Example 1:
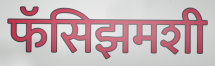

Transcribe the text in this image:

फॅसिझमशी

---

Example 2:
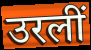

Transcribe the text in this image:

उरलीं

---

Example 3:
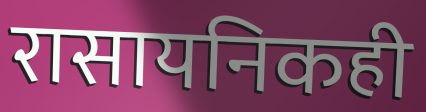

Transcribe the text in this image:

रासायनिकही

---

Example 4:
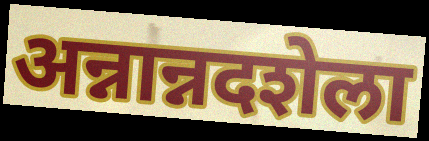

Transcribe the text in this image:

अन्नान्नदशेला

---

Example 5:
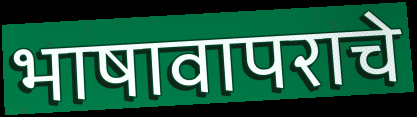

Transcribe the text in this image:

भाषावापराचे